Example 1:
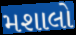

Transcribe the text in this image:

મશાલો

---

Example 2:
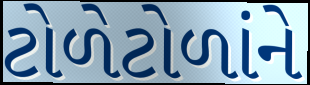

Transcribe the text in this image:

ટોળેટોળાંને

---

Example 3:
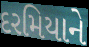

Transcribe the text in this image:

દરમિયાને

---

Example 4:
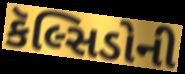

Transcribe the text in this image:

કૅલ્સિડોની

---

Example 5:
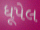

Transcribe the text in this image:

ધૂપેલ